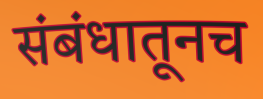
संबंधातूनच